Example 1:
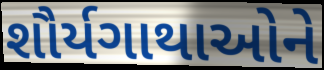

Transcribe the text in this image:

શૌર્યગાથાઓને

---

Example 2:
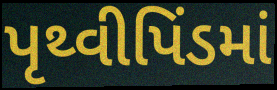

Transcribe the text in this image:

પૃથ્વીપિંડમાં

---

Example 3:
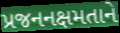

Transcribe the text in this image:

પ્રજનનક્ષમતાને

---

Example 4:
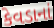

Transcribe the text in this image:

કેવડાનાં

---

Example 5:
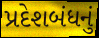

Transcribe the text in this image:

પ્રદેશબંધનું